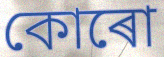
কোৰো